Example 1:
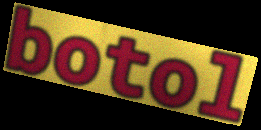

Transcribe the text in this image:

botol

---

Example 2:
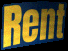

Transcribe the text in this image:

Rent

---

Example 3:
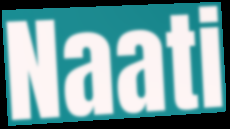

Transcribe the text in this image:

Naati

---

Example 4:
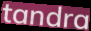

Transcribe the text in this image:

tandra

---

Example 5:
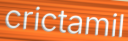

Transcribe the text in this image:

crictamil